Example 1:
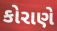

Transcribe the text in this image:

કોરાણે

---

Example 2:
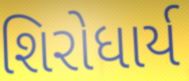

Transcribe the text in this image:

શિરોધાર્ય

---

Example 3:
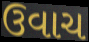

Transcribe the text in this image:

ઉવાચ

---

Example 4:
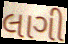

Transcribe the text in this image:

લાગી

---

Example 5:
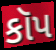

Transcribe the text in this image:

કૉપ